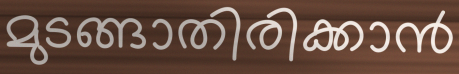
മുടങ്ങാതിരിക്കാൻ